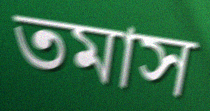
তমাস